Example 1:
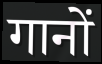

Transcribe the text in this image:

गानों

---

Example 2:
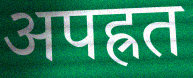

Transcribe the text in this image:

अपह्रत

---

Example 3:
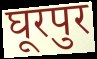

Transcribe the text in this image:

घूरपुर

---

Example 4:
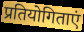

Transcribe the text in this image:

प्रतियोगिताएं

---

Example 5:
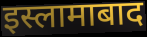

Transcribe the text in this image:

इस्लामाबाद